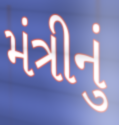
મંત્રીનું